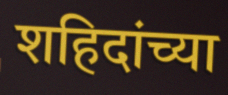
शहिदांच्या